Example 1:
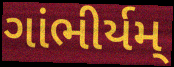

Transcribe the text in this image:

ગાંભીર્યમ્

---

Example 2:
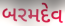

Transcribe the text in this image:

બરમદેવ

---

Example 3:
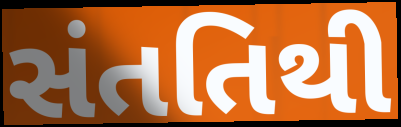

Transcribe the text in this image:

સંતતિથી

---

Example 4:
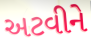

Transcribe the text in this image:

અટવીને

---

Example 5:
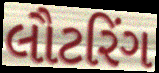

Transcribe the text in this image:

લૌટરિંગ